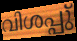
വിശപ്പു്